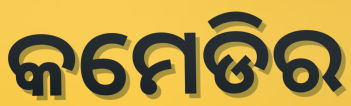
କମେଡିର